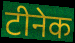
टीनेक